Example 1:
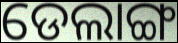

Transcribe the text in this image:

ଡେଲାଙ୍ଗ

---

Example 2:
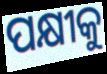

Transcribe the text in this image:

ପକ୍ଷୀକୁ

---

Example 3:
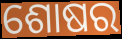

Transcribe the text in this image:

ଶୋଷର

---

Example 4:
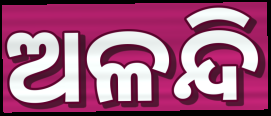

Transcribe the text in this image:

ଅଳନ୍ଦି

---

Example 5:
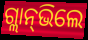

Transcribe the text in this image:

ଗ୍ଲାନ୍‌ଭିଲେ